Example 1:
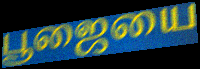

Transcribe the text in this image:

பூஜையை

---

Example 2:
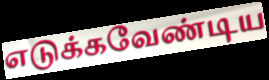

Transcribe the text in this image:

எடுக்கவேண்டிய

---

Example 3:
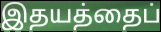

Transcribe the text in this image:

இதயத்தைப்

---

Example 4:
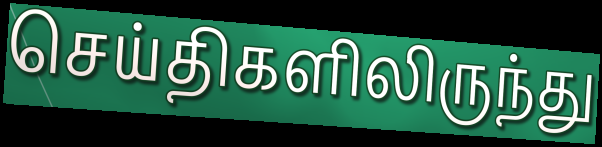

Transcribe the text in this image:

செய்திகளிலிருந்து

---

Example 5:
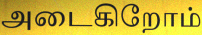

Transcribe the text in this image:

அடைகிறோம்